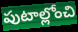
పుటాల్లోంచి